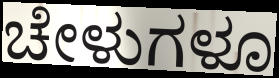
ಚೇಳುಗಳೂ